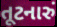
તૂટનારું